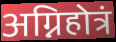
अग्निहोत्रं